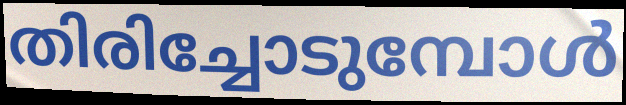
തിരിച്ചോടുമ്പോൾ